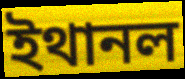
ইথানল